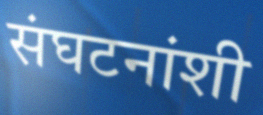
संघटनांशी